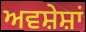
ਅਵਸ਼ੇਸ਼ਾਂ